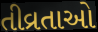
તીવ્રતાઓ